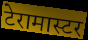
टेरामास्टर